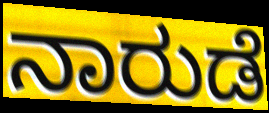
ನಾರುಡೆ